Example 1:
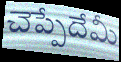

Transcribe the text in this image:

చెప్పేదేమీ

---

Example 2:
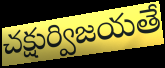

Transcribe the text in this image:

చక్షుర్విజయతే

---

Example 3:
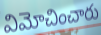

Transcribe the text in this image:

విమోచించారు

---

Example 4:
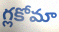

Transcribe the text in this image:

గ్లకోమా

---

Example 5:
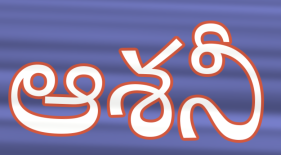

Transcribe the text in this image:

ఆశనీ